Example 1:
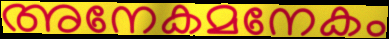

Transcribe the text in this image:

അനേകമനേകം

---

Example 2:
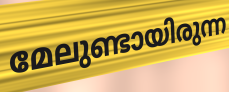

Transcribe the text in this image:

മേലുണ്ടായിരുന്ന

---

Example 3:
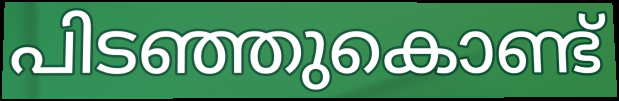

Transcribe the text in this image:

പിടഞ്ഞുകൊണ്ട്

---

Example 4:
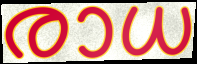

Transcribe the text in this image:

രാധ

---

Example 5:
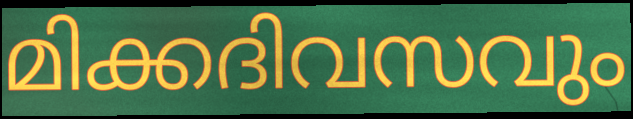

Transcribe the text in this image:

മിക്കദിവസവും